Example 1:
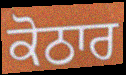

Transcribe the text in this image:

ਕੋਠਾਰ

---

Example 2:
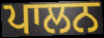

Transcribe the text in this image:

ਪਾਲਨ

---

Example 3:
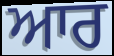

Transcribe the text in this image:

ਆਰ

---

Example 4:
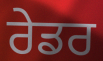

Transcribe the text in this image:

ਰੇਡਰ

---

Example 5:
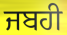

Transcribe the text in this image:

ਜਬਹੀ